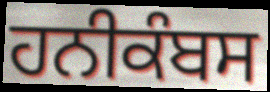
ਹਨੀਕੰਬਸ